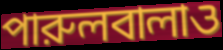
পারুলবালাও